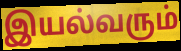
இயல்வரும்